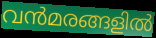
വൻമരങ്ങളിൽ